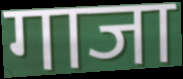
गाजा